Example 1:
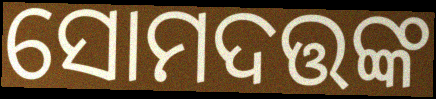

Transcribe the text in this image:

ସୋମଦତ୍ତଙ୍କ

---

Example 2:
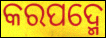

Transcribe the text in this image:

କରପଦ୍ମେ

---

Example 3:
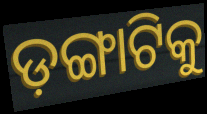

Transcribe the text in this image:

ଡ଼ଙ୍ଗାଟିକୁ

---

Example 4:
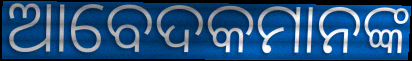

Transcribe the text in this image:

ଆବେଦକମାନଙ୍କ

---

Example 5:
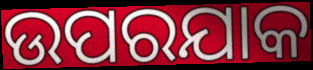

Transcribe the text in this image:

ଉପରଯାକ